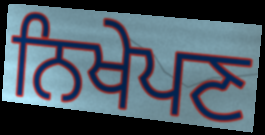
ਨਿਖੇਪਣ